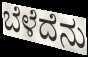
ಬೆಳೆದೆನು